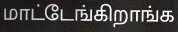
மாட்டேங்கிறாங்க